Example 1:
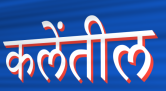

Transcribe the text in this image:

कलेंतील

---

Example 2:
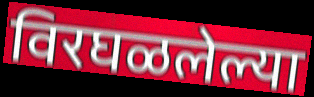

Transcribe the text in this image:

विरघळलेल्या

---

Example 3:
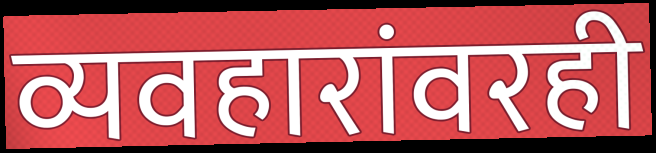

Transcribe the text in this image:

व्यवहारांवरही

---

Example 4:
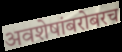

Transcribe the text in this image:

अवशेषांबरोबरच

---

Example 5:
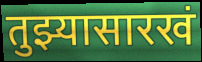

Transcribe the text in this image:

तुझ्यासारखं